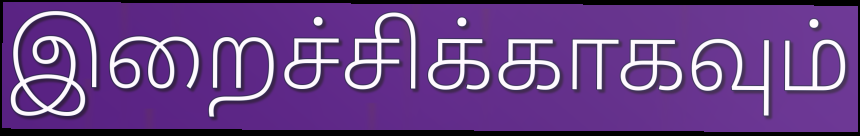
இறைச்சிக்காகவும்